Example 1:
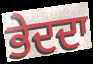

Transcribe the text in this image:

ਭੇਦਦਾ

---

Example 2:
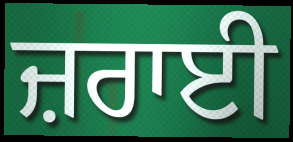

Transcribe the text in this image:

ਜ਼ਰਾਈ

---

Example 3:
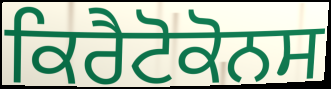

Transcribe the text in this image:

ਕਿਰੈਟੋਕੋਨਸ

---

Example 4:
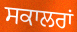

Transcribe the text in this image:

ਸਕਾਲਰਾਂ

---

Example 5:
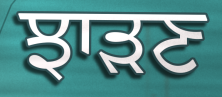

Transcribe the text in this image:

ਝਾੜਣ